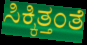
ಸಿಕ್ಕಿತ್ತಂತೆ